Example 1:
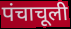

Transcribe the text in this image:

पंचाचूली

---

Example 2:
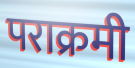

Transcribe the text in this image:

पराक्रमी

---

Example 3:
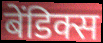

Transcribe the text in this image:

बेंडिक्स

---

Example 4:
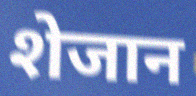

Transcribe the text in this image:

शेजान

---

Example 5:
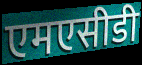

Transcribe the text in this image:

एमएसीडी